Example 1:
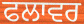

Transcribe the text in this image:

ਫਲਾਵਰ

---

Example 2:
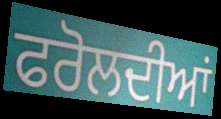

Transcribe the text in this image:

ਫਰੋਲਦੀਆਂ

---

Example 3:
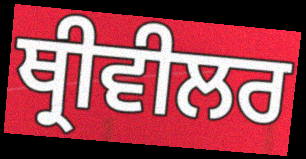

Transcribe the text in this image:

ਥ੍ਰੀਵੀਲਰ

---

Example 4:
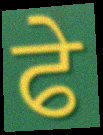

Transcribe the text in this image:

ਫੇ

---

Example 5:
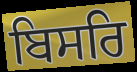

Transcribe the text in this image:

ਬਿਸਰਿ